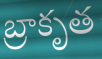
బ్రాకృత